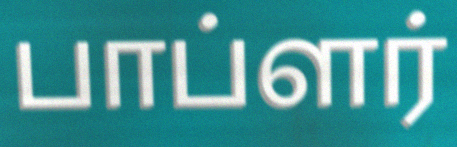
பாப்ளர்